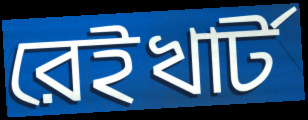
রেইখার্ট